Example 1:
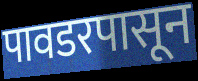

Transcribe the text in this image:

पावडरपासून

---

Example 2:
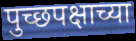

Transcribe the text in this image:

पुच्छपक्षाच्या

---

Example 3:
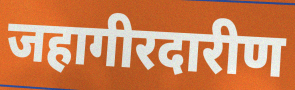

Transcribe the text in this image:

जहागीरदारीण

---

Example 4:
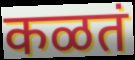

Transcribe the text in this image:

कळतं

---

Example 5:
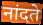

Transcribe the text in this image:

नांदते